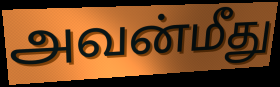
அவன்மீது